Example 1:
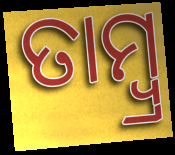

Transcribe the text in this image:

ତାମ୍ବ୍ର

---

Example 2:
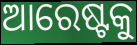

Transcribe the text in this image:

ଆରେଷ୍ଟକୁ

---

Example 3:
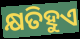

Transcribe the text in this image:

କ୍ଷତିହୁଏ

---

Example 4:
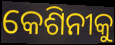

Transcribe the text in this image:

କେଶିନୀକୁ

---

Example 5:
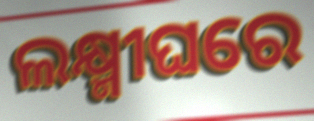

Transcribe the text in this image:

ଲକ୍ଷ୍ମୀଘରେ